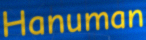
Hanuman